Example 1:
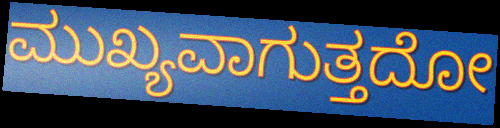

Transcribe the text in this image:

ಮುಖ್ಯವಾಗುತ್ತದೋ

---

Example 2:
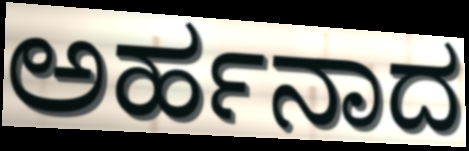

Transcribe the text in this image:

ಅರ್ಹನಾದ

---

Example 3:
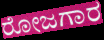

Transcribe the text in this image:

ರೋಜಗಾರ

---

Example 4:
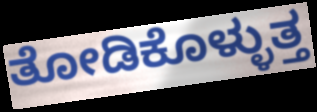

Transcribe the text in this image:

ತೋಡಿಕೊಳ್ಳುತ್ತ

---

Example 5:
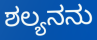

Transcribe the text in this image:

ಶಲ್ಯನನು